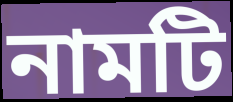
নামটি